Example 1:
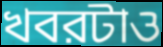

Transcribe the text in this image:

খবরটাও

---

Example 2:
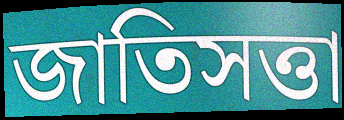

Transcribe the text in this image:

জাতিসত্তা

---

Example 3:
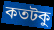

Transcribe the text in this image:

কতটকু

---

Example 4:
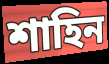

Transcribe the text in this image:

শাহিন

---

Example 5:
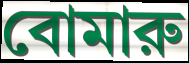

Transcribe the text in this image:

বোমারু